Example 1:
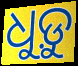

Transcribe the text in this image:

ଧୁଡ଼ୁ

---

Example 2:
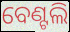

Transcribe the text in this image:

ବେଣ୍ଟଲି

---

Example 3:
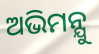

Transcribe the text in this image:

ଅଭିମନ୍ଯୁ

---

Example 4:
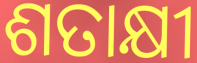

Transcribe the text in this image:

ଶତାକ୍ଷୀ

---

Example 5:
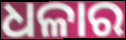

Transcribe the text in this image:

ଧଳାର